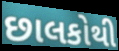
છાલકોથી